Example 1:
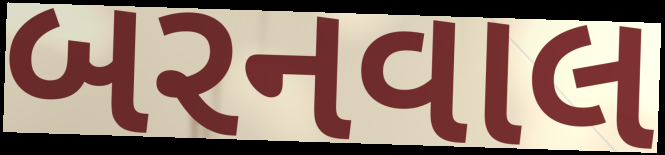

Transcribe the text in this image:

બરનવાલ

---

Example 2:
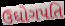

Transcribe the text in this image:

ઉઘોગપતિ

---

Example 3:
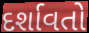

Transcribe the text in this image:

દર્શાવતો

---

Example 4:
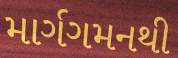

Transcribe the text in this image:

માર્ગગમનથી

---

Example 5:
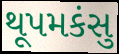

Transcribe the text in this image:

થૂપમકંસુ